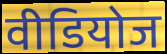
वीडियोज